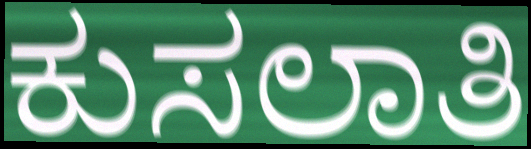
ಕುಸಲಾತಿ